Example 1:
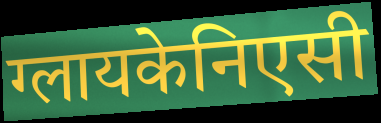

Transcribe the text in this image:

ग्लायकेनिएसी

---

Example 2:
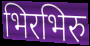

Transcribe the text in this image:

भिरभिरु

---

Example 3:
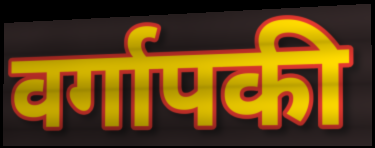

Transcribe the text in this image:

वर्गापकी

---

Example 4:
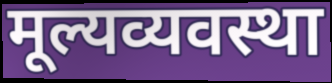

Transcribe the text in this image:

मूल्यव्यवस्था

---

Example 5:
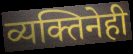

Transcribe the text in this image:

व्यक्तिनेही